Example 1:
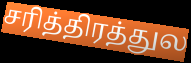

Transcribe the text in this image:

சரித்திரத்துல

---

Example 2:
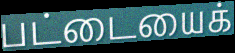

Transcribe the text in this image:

பட்டையைக்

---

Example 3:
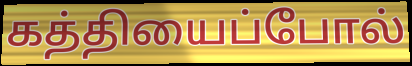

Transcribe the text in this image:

கத்தியைப்போல்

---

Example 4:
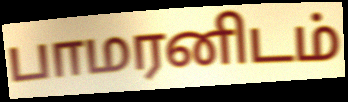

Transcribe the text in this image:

பாமரனிடம்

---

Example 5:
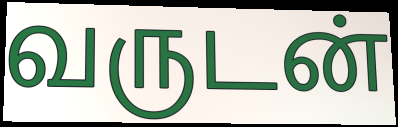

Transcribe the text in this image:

வருடன்